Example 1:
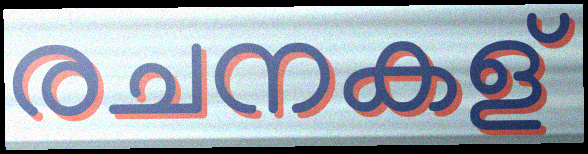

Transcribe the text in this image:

രചനകള്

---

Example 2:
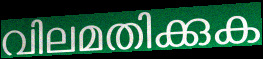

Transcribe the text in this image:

വിലമതിക്കുക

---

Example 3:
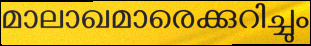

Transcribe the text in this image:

മാലാഖമാരെക്കുറിച്ചും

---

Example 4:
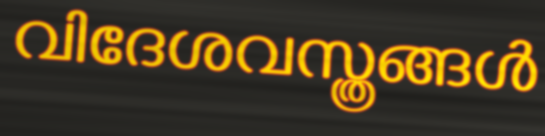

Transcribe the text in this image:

വിദേശവസ്ത്രങ്ങൾ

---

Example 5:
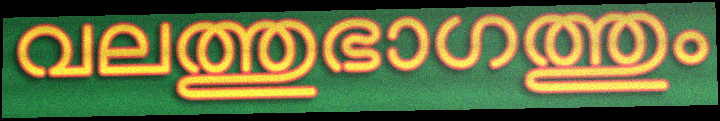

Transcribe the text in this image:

വലത്തുഭാഗത്തും